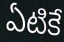
ఏటికే